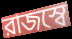
রাজস্বে